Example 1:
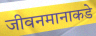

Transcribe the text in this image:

जीवनमानाकडे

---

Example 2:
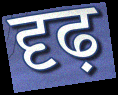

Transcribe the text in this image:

दृढ़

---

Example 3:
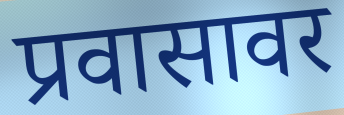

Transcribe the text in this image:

प्रवासावर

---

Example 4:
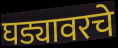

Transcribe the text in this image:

घड्यावरचे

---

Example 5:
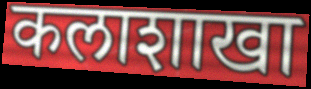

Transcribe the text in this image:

कलाशाखा